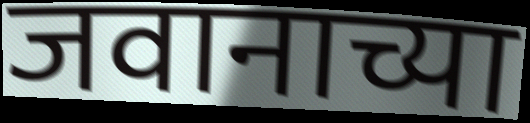
जवानाच्या